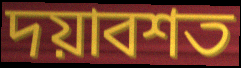
দয়াবশত